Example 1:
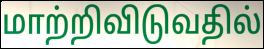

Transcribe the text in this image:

மாற்றிவிடுவதில்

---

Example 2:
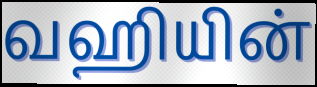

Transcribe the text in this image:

வஹியின்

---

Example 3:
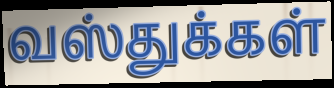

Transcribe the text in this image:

வஸ்துக்கள்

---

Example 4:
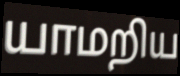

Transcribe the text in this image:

யாமறிய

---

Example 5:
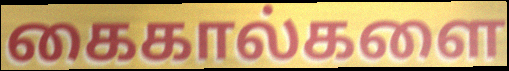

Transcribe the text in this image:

கைகால்களை